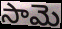
సామె